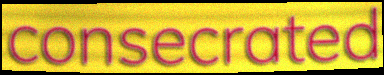
consecrated